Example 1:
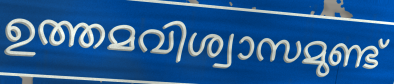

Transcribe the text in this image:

ഉത്തമവിശ്വാസമുണ്ട്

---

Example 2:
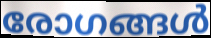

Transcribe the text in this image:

രോഗങ്ങൾ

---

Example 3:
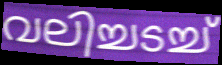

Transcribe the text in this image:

വലിച്ചടച്ച്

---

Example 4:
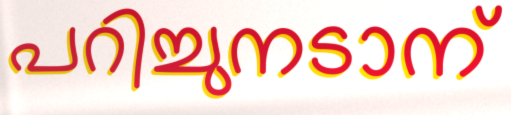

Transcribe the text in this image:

പറിച്ചുനടാന്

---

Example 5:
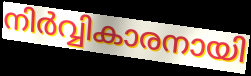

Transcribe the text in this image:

നിർവ്വികാരനായി